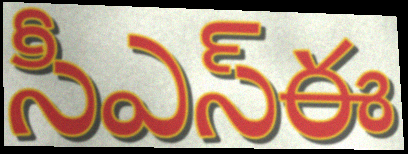
సీఎస్ఈ